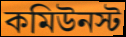
কমিউনস্ট